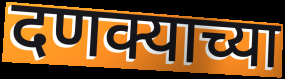
दणक्याच्या